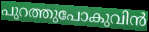
പുറത്തുപോകുവിൻ